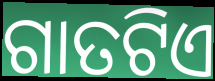
ଗାତଟିଏ